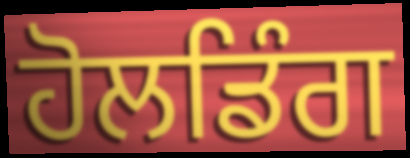
ਹੋਲਡਿੰਗ